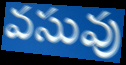
వసువు